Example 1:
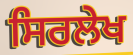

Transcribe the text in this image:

ਸਿਰਲੇਖ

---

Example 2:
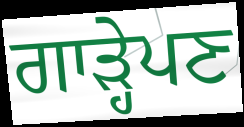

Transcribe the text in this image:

ਗਾੜ੍ਹੇਪਣ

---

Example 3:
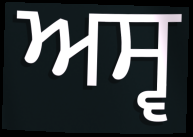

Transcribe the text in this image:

ਅਸ੍ਵ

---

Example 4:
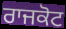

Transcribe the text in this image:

ਰਾਜਕੋਟ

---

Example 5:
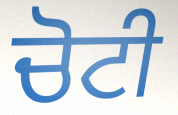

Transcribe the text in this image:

ਚੋਟੀ